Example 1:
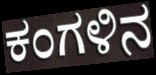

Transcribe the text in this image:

ಕಂಗಳಿನ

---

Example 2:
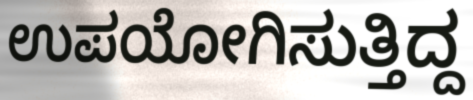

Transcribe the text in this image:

ಉಪಯೋಗಿಸುತ್ತಿದ್ದ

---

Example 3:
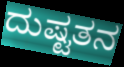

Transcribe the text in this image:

ದುಷ್ಟತನ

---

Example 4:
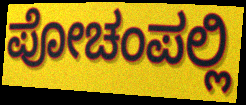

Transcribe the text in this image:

ಪೋಚಂಪಲ್ಲಿ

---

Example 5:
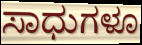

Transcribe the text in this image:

ಸಾಧುಗಳೂ